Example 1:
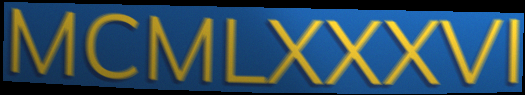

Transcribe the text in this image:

MCMLXXXVI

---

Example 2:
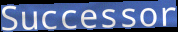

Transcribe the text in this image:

Successor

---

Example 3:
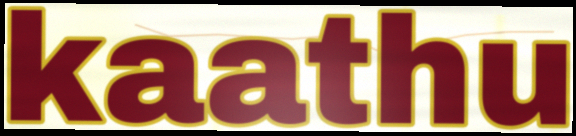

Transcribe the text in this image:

kaathu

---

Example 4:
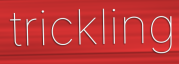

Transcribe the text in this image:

trickling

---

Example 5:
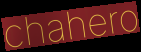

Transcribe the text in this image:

chahero